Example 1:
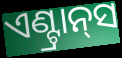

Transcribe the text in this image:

ଏଣ୍ଟ୍ରାନ୍‌ସ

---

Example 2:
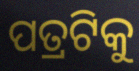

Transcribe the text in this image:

ପତ୍ରଟିକୁ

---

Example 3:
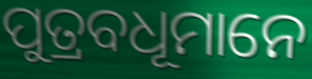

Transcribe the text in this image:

ପୁତ୍ରବଧୂମାନେ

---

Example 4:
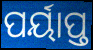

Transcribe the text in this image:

ପର୍ୟାପ୍ତ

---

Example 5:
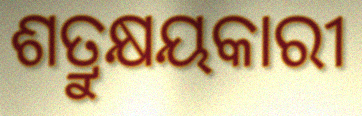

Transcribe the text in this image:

ଶତ୍ରୁକ୍ଷୟକାରୀ